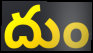
దుం